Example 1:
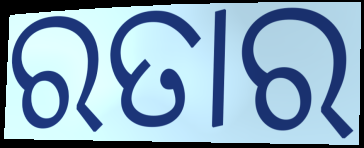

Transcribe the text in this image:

ରତାର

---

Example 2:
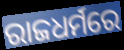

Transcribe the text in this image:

ରାଜଧର୍ମରେ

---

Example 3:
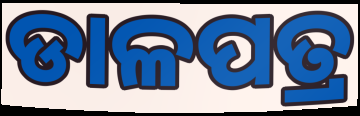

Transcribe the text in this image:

ଡାଳପତ୍ର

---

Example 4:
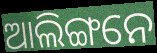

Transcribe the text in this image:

ଆଲିଙ୍ଗନେ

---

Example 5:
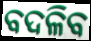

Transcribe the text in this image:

ବଦଳିବ